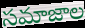
సమాజాల